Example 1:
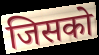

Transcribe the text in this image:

जिसको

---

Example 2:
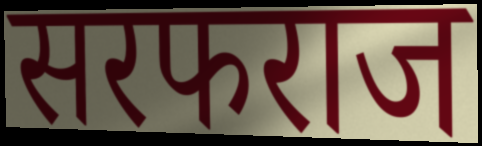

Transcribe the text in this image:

सरफराज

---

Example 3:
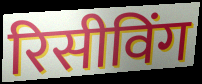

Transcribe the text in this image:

रिसीविंग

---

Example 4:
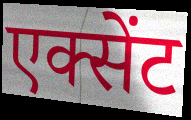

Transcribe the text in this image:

एक्सेंट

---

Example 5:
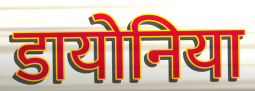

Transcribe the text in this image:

डायोनिया